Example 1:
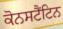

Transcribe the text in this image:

ਕੋਨਸਟੈਂਟਿਨ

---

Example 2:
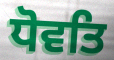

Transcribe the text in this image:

ਧੋਵਤਿ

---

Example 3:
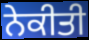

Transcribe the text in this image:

ਨੇਕੀਤੀ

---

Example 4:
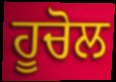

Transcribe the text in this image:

ਹੂਚੋਲ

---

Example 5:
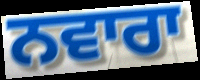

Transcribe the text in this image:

ਨਵਾਰਾ